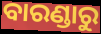
ବାରଣ୍ଡାରୁ